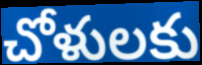
చోళులకు